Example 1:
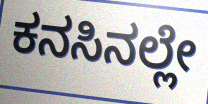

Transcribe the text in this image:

ಕನಸಿನಲ್ಲೇ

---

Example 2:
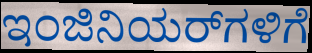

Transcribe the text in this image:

ಇಂಜಿನಿಯರ್‌ಗಳಿಗೆ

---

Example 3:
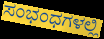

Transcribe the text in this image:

ಸಂಭಂಧಗಳಲ್ಲಿ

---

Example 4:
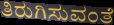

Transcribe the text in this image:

ತಿರುಗಿಸುವಂತೆ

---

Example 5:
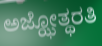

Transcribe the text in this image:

ಅಜ್ಝೋತ್ಥರತಿ